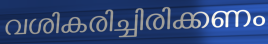
വശികരിച്ചിരിക്കണം